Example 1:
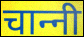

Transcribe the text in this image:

चान्नी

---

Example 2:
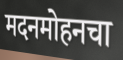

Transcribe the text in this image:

मदनमोहनचा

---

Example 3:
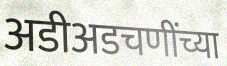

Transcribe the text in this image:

अडीअडचणींच्या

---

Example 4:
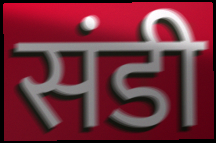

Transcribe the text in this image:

संडी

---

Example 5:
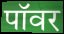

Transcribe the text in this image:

पॉवर